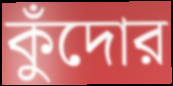
কুঁদোর